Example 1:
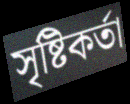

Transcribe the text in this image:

সৃষ্টিকৰ্তা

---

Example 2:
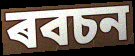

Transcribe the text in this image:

ৰবচন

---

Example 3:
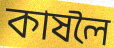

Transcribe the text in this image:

কাষলৈ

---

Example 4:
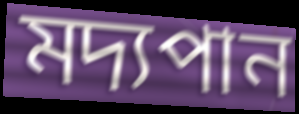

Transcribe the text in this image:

মদ্যপান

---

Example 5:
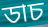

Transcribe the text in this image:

ডাচ